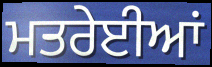
ਮਤਰੇਈਆਂ